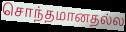
சொந்தமானதல்ல